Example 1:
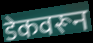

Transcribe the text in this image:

डेकवरून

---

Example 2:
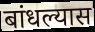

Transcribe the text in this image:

बांधल्यास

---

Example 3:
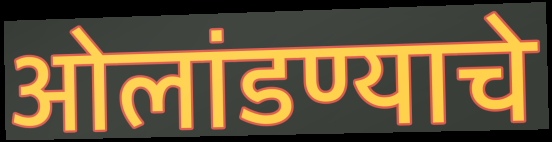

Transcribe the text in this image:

ओलांडण्याचे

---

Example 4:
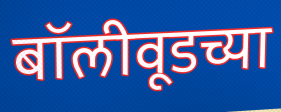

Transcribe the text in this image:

बॉलीवूडच्या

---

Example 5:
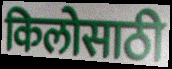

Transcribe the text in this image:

किलोसाठी